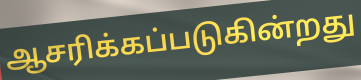
ஆசரிக்கப்படுகின்றது